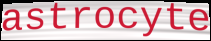
astrocyte